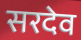
सरदेव